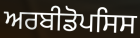
ਅਰਬੀਡੋਪਸਿਸ